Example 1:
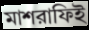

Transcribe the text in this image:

মাশরাফিই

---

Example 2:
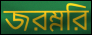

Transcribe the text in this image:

জরম্নরি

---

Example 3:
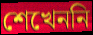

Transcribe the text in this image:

শেখেননি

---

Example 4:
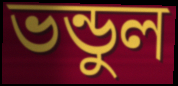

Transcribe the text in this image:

ভন্ডুল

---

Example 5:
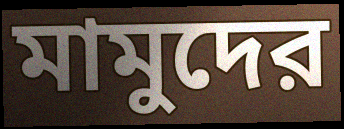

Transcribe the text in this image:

মামুদের